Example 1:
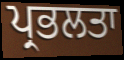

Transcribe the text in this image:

ਪ੍ਰਭਲਤਾ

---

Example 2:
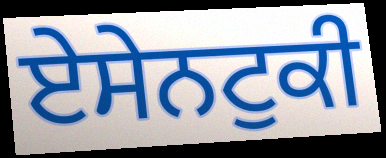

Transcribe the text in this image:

ਏਸੇਨਟੁਕੀ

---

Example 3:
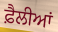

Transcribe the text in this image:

ਫ਼ੈਲੀਆਂ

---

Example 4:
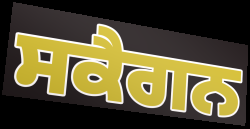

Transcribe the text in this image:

ਸਕੈਗਨ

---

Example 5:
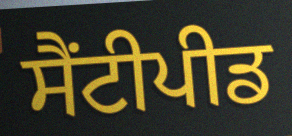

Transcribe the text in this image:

ਸੈਂਟੀਪੀਡ